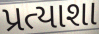
પ્રત્યાશા